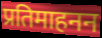
प्रतिमाहनन